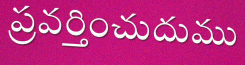
ప్రవర్తించుదుము